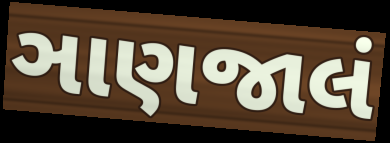
ઞાણજાલં